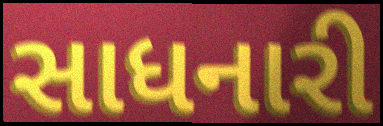
સાધનારી